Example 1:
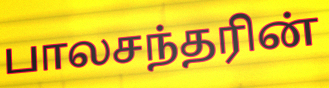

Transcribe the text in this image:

பாலசந்தரின்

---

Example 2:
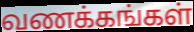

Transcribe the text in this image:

வணக்கங்கள்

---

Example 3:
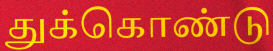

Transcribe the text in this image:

துக்கொண்டு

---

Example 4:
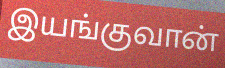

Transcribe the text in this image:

இயங்குவான்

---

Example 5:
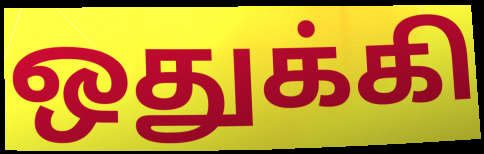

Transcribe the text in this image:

ஒதுக்கி